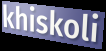
khiskoli